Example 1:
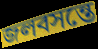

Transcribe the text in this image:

জলবসন্তে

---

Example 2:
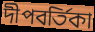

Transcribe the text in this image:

দীপবর্তিকা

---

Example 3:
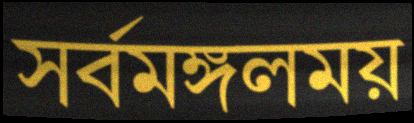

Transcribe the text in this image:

সর্বমঙ্গলময়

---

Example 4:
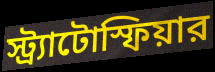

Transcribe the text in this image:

স্ট্র্যাটোস্ফিয়ার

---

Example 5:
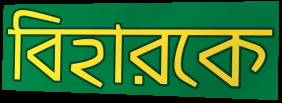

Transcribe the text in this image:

বিহারকে